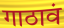
गाठावं